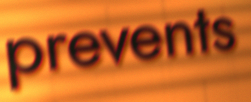
prevents